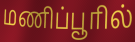
மணிப்பூரில்